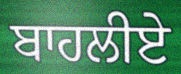
ਬਾਹਲੀਏ